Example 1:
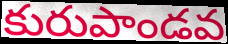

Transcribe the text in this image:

కురుపాండవ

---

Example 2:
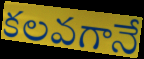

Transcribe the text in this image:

కలవగానే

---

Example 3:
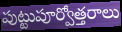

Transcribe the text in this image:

పుట్టుపూర్వోత్తరాలు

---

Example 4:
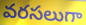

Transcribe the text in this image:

వరసలుగా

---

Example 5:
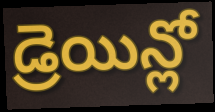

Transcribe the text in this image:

డ్రెయిన్లో